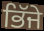
ਭਿੱਜੇ